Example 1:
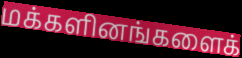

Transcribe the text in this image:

மக்களினங்களைக்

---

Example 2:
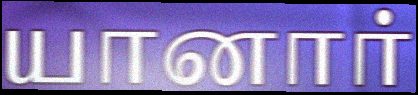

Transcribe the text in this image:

யானார்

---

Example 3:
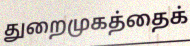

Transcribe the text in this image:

துறைமுகத்தைக்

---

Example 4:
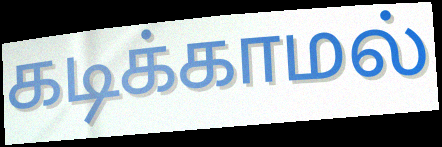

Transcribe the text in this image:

கடிக்காமல்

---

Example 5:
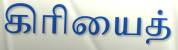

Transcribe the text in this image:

கிரியைத்